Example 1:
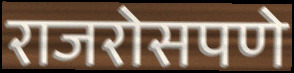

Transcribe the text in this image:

राजरोसपणे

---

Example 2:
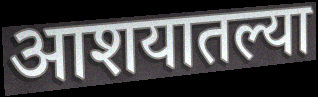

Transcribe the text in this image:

आशयातल्या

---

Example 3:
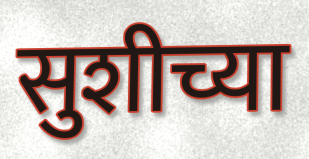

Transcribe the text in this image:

सुशीच्या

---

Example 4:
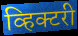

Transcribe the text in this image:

व्हिक्टरी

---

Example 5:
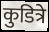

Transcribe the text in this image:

कुडित्रे